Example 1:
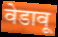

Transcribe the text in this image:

वेडावू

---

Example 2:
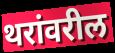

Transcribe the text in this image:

थरांवरील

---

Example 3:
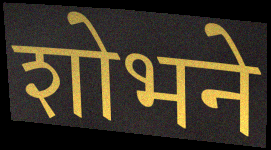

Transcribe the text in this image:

शोभने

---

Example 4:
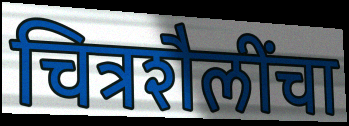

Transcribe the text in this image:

चित्रशैलींचा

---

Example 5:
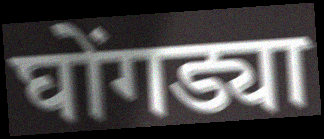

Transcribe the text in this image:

घोंगड्या